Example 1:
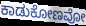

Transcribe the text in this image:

ಕಾಡುಕೋಣವೋ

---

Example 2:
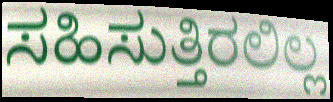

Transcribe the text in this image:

ಸಹಿಸುತ್ತಿರಲಿಲ್ಲ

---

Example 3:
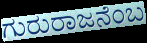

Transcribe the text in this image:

ಗುರುರಾಜನೆಂಬ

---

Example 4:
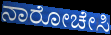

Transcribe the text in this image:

ನಾರೋಚೇಸಿ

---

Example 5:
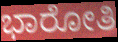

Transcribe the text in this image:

ಭಾರೋತಿ